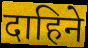
दाहिने